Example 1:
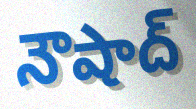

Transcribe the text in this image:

నౌషాద్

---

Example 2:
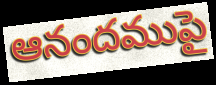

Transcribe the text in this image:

ఆనందముపై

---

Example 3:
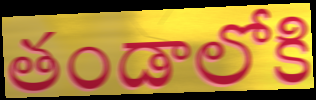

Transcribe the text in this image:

తండాలోకి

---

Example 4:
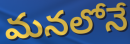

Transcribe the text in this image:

మనలోనే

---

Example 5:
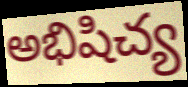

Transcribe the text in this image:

అభిషిచ్య